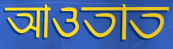
আওতাত